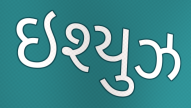
ઇશ્યુઝ